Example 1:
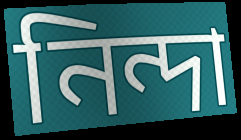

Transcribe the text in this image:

নিন্দা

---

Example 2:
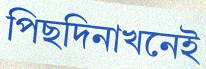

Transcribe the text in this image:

পিছদিনাখনেই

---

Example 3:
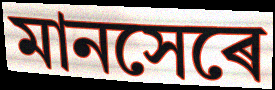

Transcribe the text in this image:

মানসেৰে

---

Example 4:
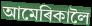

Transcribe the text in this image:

আমেৰিকালৈ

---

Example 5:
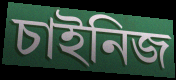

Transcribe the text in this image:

চাইনিজ